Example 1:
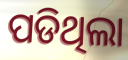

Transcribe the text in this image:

ପଡିଥିଲା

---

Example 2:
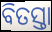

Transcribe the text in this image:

ବିତସ୍ତା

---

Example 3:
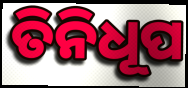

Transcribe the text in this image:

ତିନିଧୂପ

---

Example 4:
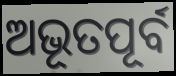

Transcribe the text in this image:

ଅଭୂତପୂର୍ବ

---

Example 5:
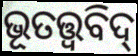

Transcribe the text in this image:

ଭୂତତ୍ତ୍ବବିଦ୍